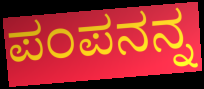
ಪಂಪನನ್ನ